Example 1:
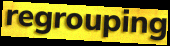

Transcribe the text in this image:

regrouping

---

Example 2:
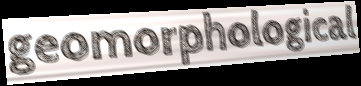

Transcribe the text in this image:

geomorphological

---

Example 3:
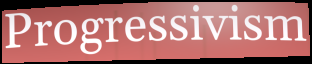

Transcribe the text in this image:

Progressivism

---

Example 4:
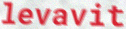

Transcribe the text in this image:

levavit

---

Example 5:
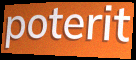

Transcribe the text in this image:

poterit